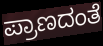
ಪ್ರಾಣದಂತೆ